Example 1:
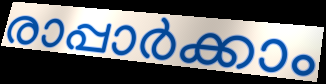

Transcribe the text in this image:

രാപ്പാർക്കാം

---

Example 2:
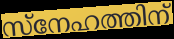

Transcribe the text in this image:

സ്നേഹത്തിന്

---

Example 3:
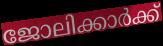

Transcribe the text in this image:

ജോലിക്കാർക്ക്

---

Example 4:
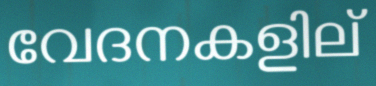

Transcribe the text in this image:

വേദനകളില്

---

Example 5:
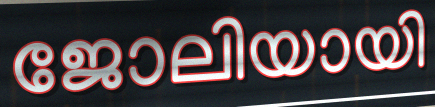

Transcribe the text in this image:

ജോലിയായി